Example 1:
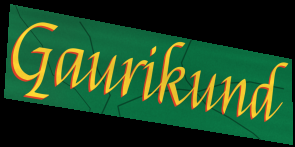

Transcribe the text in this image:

Gaurikund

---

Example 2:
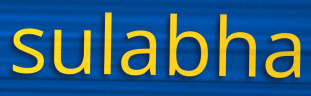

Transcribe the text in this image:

sulabha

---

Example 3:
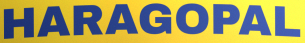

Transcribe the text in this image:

HARAGOPAL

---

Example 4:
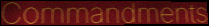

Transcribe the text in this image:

Commandments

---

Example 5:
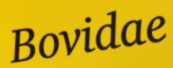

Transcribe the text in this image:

Bovidae